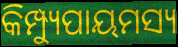
କିମ୍ପ୍ୟୁପାୟମସ୍ୟ